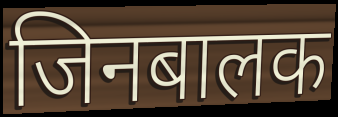
जिनबालक